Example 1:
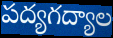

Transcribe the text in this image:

పద్యగద్యాల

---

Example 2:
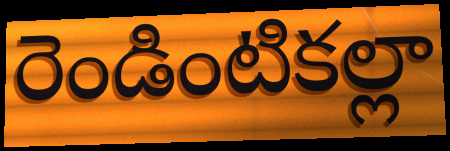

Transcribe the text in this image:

రెండింటికల్లా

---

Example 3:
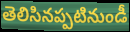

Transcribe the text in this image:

తెలిసినప్పటినుండీ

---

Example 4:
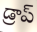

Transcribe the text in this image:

డ్రాప్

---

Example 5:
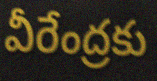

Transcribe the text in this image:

వీరేంద్రకు